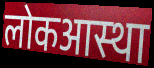
लोकआस्था